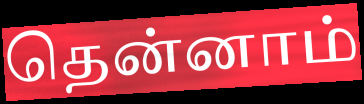
தென்னாம்